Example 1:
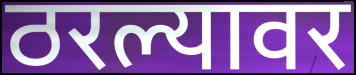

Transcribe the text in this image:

ठरल्यावर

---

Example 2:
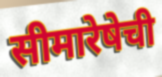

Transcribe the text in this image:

सीमारेषेची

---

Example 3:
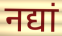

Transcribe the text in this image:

नद्यां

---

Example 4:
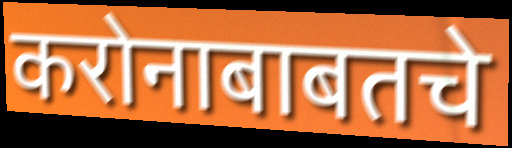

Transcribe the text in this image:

करोनाबाबतचे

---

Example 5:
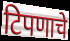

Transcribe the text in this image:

टिपणाचे